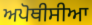
ਅਪੋਥੀਸੀਆ